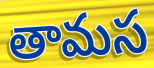
తామస